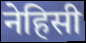
नेहिसी